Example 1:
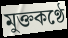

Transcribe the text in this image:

মুক্তকণ্ঠে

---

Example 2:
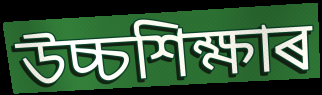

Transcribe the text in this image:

উচ্চশিক্ষাৰ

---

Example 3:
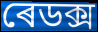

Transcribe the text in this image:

ৰেডক্স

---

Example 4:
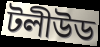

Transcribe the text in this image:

টলীউড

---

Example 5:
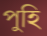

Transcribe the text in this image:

পুহি